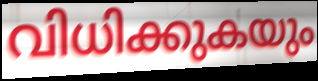
വിധിക്കുകയും